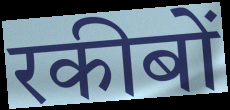
रकीबों